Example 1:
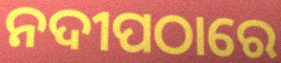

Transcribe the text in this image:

ନଦୀପଠାରେ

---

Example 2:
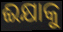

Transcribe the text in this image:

ଈକ୍ଷାକୁ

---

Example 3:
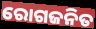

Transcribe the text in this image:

ରୋଗଜନିତ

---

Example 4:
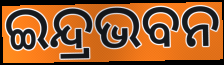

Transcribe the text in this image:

ଇନ୍ଦ୍ରଭବନ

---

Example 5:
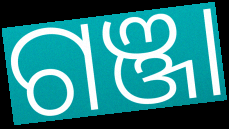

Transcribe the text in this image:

ଗଞ୍ଜା